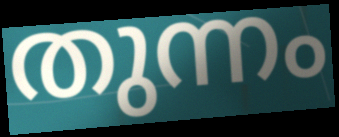
തുന്നം